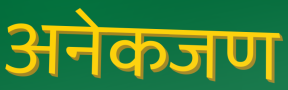
अनेकजण